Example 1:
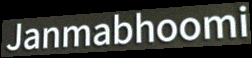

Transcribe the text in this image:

Janmabhoomi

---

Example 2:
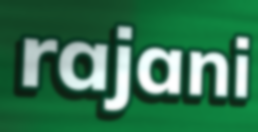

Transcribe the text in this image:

rajani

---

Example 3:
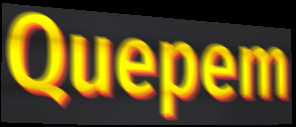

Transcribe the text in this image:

Quepem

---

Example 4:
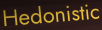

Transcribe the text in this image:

Hedonistic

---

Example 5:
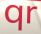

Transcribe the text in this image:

qr